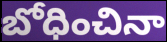
బోధించినా